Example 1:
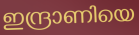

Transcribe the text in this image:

ഇന്ദ്രാണിയെ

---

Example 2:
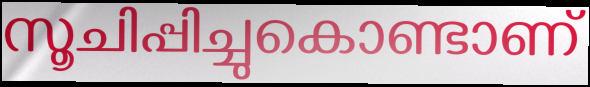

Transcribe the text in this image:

സൂചിപ്പിച്ചുകൊണ്ടാണ്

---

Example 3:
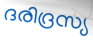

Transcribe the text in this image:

ദരിദ്രസ്യ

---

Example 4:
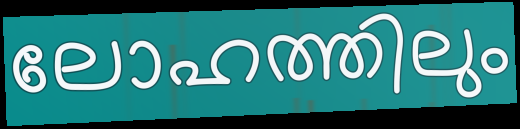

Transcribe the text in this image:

ലോഹത്തിലും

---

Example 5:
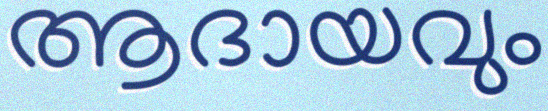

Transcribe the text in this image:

ആദായവും